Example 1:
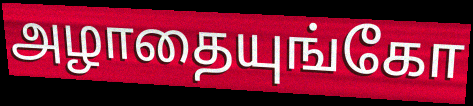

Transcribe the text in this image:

அழாதையுங்கோ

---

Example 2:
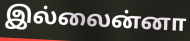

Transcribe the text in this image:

இல்லைன்னா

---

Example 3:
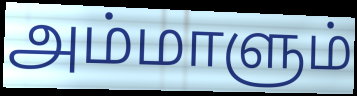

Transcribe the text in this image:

அம்மாளும்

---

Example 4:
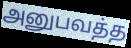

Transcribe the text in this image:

அனுபவத்த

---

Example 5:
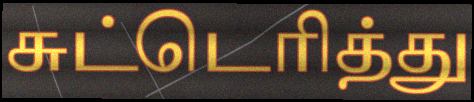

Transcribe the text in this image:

சுட்டெரித்து